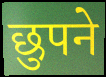
छुपने